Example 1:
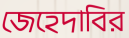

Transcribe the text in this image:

জেহেদাবির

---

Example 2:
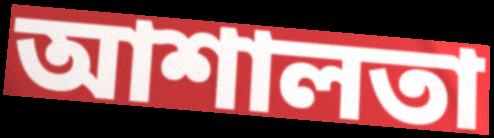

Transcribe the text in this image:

আশালতা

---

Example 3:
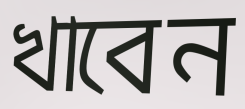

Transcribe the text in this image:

খাবেন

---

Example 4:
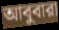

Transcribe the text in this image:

আবুবারা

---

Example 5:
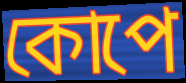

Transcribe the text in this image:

কোপে